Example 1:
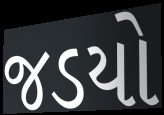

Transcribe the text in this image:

જડયો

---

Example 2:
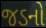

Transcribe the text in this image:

જડનો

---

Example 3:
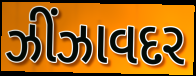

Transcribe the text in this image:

ઝીંઝાવદર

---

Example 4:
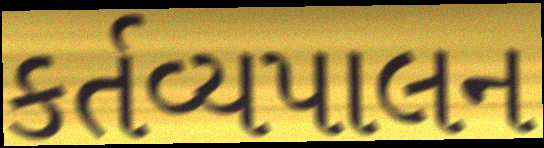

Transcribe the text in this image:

કર્તવ્યપાલન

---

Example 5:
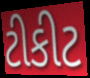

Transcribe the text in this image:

ટીકીટ